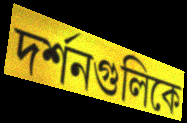
দর্শনগুলিকে